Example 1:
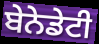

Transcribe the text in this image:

ਬੇਨੇਡੇਟੀ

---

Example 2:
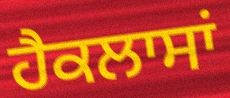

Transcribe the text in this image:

ਹੈਕਲਾਸਾਂ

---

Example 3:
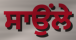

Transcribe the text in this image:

ਸਾਉਂਲੇ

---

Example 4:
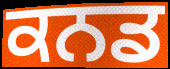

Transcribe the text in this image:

ਕਨਡ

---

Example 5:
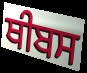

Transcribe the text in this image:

ਥੀਬਸ